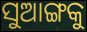
ସୁଆଙ୍ଗକୁ